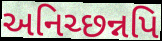
અનિચ્છન્નપિ